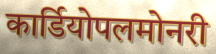
कार्डियोपलमोनरी